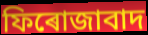
ফিৰোজাবাদ